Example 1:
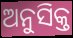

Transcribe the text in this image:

ଅନୁସିକ୍ତ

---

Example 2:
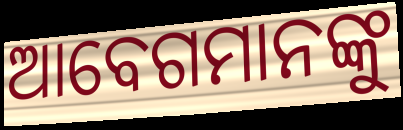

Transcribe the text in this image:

ଆବେଗମାନଙ୍କୁ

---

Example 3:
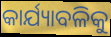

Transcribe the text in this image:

କାର୍ଯ୍ୟାବଳିକୁ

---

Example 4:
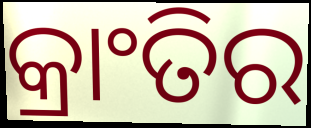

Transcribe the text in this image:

କ୍ରାଂତିର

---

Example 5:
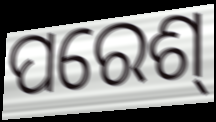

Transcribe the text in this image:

ପରେଶ୍